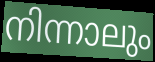
നിന്നാലും